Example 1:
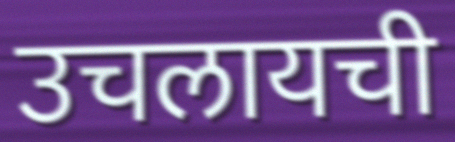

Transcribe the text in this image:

उचलायची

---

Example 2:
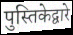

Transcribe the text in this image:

पुस्तिकेद्वारे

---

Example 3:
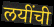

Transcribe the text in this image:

लयींची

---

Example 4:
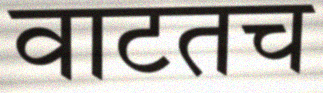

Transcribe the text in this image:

वाटतच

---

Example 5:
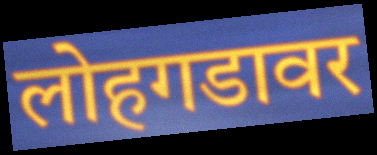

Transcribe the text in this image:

लोहगडावर